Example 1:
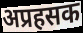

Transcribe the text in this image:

अप्रहसक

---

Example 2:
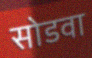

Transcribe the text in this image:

सोडवा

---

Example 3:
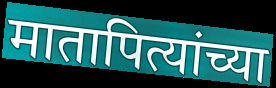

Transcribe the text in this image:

मातापित्यांच्या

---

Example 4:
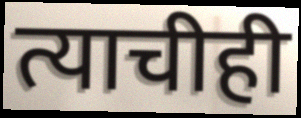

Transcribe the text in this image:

त्याचीही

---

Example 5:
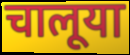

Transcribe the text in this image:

चालूया